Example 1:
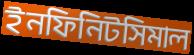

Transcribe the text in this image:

ইনফিনিটসিমাল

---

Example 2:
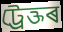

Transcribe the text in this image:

ট্ৰেক্তৰ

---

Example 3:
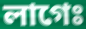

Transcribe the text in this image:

লাগেঃ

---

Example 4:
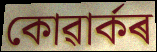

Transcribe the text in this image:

কোৱাৰ্কৰ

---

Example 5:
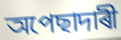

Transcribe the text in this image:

অপেছাদাৰী